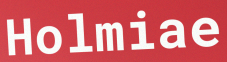
Holmiae